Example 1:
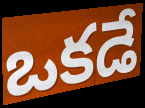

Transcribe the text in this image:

ఒకడే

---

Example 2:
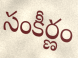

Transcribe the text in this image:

సంకీర్ణం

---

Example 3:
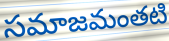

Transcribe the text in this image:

సమాజమంతటి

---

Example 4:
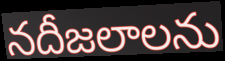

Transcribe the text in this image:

నదీజలాలను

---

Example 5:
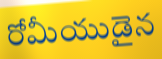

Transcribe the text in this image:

రోమీయుడైన